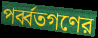
পর্ব্বতগণের